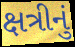
ક્ષત્રીનું